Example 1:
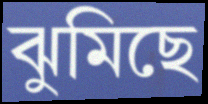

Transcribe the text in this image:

ঝুমিছে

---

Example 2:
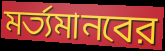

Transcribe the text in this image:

মর্ত্যমানবের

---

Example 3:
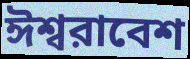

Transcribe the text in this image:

ঈশ্বরাবেশ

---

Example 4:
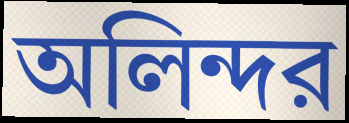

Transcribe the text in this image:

অলিন্দর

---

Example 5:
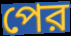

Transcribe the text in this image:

পের